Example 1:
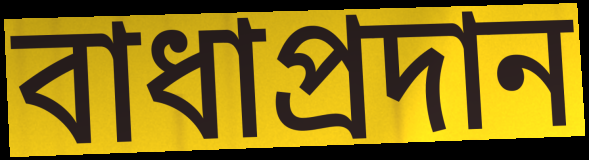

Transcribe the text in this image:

বাধাপ্রদান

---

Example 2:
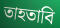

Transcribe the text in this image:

তাহতাবি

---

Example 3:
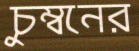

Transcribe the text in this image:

চুম্বনের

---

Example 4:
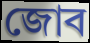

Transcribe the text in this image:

জোব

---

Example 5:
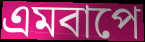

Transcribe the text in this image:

এমবাপে